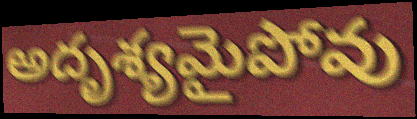
అదృశ్యమైపోవు